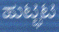
ಹುಟ್ಟಟ